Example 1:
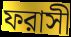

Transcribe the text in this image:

ফরাসী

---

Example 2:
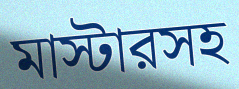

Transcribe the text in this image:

মাস্টারসহ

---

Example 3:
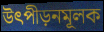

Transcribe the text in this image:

উৎপীড়নমূলক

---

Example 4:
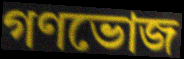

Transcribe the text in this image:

গণভোজ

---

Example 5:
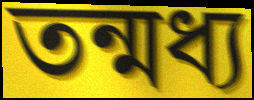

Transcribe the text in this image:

তন্মধ্য